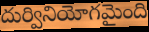
దుర్వినియోగమైంది